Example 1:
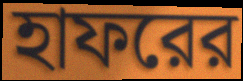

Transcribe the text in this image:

হাফরের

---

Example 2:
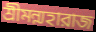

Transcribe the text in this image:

শ্রীমন্মহারাজ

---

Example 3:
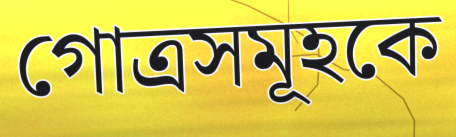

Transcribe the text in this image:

গোত্রসমূহকে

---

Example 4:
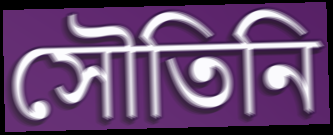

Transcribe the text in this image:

সৌতিনি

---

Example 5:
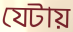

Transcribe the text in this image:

যেটায়